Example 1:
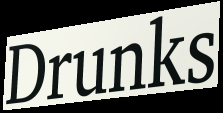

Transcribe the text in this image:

Drunks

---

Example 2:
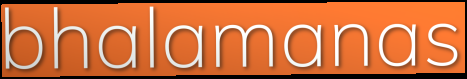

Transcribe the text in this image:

bhalamanas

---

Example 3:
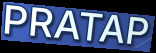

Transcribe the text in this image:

PRATAP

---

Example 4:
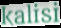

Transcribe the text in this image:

kalisi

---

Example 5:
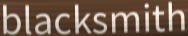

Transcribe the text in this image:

blacksmith